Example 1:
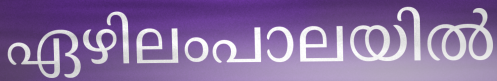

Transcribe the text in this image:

ഏഴിലംപാലയിൽ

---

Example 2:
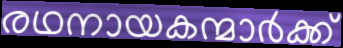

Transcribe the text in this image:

രഥനായകന്മാർക്ക്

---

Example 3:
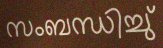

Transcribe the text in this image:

സംബന്ധിച്ചു്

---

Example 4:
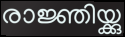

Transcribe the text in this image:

രാജ്ഞിയ്ക്കു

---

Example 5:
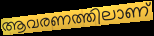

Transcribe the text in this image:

ആവരണത്തിലാണ്